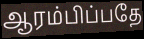
ஆரம்பிப்பதே